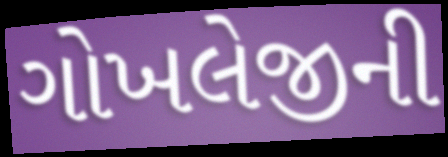
ગોખલેજીની